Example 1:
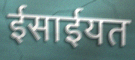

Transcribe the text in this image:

ईसाईयत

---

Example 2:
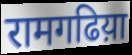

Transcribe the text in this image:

रामगढिय़ा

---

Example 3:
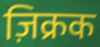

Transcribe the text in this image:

ज़िक्रक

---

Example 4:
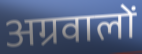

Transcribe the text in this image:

अग्रवालों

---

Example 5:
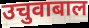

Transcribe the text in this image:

उचुवाबाल